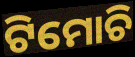
ଟିମୋଚି